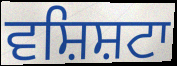
ਵਸ਼ਿਸ਼ਟਾ